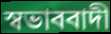
স্বভাববাদী